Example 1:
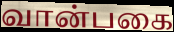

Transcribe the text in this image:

வான்பகை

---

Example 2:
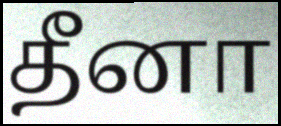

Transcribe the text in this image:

தீனா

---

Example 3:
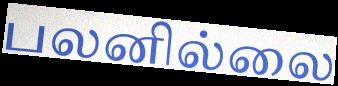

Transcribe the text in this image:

பலனில்லை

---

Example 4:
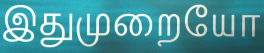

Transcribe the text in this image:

இதுமுறையோ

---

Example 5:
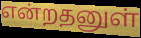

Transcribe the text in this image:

என்றதனுள்